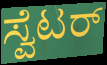
ಸ್ವೆಟರ್